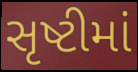
સૃષ્ટીમાં